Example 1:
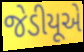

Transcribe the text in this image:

જેડીયૂએ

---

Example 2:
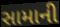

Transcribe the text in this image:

સામાની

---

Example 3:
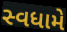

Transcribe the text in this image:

સ્વધામે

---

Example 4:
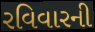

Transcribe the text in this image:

રવિવારની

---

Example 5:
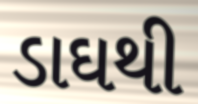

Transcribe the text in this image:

ડાઘથી